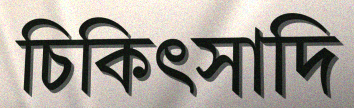
চিকিৎসাদি